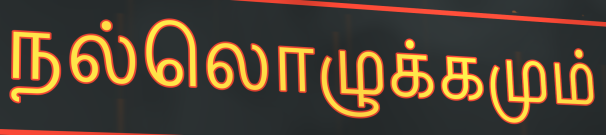
நல்லொழுக்கமும்